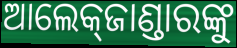
ଆଲେକ୍‌ଜାଣ୍ଡାରଙ୍କୁ